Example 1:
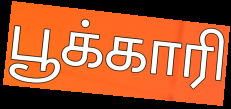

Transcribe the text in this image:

பூக்காரி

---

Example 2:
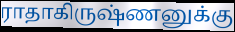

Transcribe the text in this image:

ராதாகிருஷ்ணனுக்கு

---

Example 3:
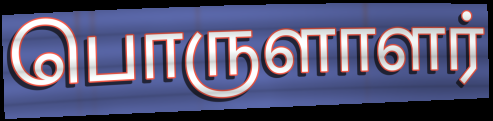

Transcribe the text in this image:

பொருளாளர்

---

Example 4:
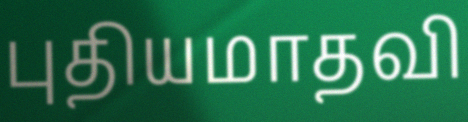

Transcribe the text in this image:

புதியமாதவி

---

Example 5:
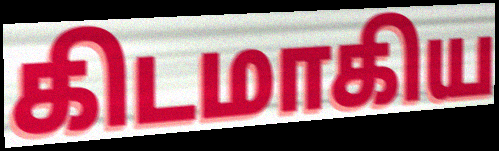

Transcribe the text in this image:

கிடமாகிய